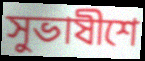
সুভাষীশে